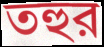
তহুর